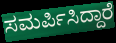
ಸಮರ್ಪಿಸಿದ್ದಾರೆ